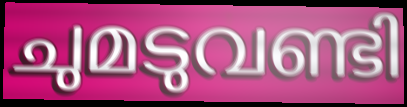
ചുമടുവണ്ടി